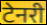
टेनरी